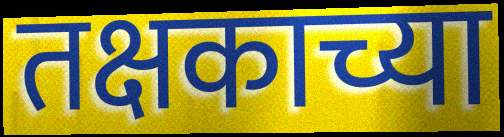
तक्षकाच्या